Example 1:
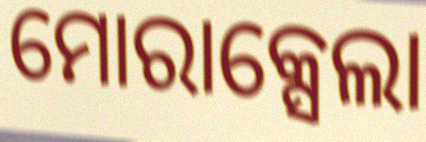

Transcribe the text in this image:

ମୋରାକ୍ସେଲା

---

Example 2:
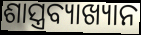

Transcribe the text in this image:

ଶାସ୍ତ୍ରବ୍ୟାଖ୍ୟାନ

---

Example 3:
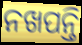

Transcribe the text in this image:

ନଖପନ୍ତି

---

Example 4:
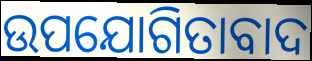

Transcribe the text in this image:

ଉପଯୋଗିତାବାଦ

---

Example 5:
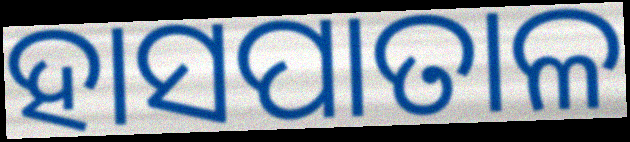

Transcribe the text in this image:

ହାସପାତାଳ